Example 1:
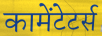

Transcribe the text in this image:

कामेंटेटर्स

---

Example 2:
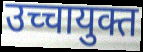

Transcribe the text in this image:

उच्चायुक्त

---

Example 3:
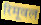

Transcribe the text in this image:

रिमूवल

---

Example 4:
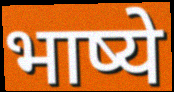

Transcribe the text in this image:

भाष्ये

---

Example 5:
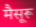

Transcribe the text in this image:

मैसूरू